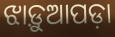
ଝାଡ଼ୁଆପଡ଼ା